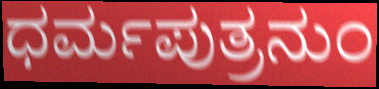
ಧರ್ಮಪುತ್ರನುಂ